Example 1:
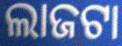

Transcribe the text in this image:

ଲାଜଟା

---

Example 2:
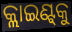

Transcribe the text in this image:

କ୍ଲାଇଣ୍ଟ୍‌କୁ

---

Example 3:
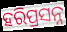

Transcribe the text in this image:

ହରିପ୍ରସନ୍ନ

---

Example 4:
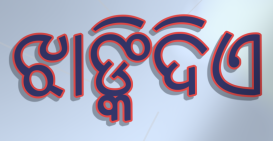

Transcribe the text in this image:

ଝାଙ୍କିଦିଏ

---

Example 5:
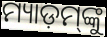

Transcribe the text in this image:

ମ୍ୟାଡ଼ମ୍‌ଙ୍କୁ